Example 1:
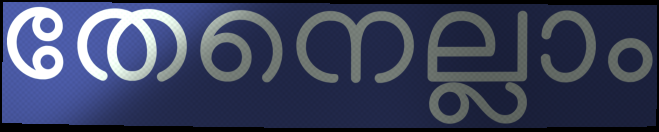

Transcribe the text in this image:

തേനെല്ലാം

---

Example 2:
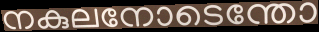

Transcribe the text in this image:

നകുലനോടെന്തോ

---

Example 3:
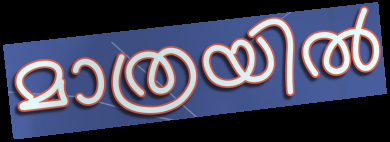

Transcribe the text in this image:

മാത്രയിൽ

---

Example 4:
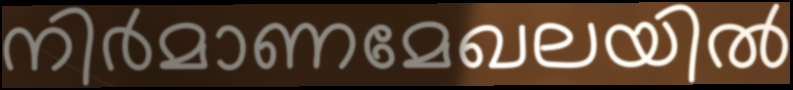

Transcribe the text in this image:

നിർമാണമേഖലയിൽ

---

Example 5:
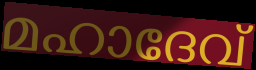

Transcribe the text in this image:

മഹാദേവ്